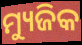
ମ୍ୟୁଜିକ